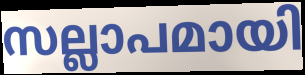
സല്ലാപമായി